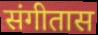
संगीतास